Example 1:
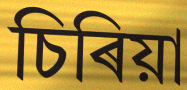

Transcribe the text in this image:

চিৰিয়া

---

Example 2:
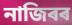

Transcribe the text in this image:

নাজিৰৰ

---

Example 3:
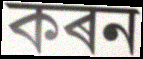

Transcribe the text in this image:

কৰন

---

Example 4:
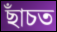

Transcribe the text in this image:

ছাঁচত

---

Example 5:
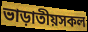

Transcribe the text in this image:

ভাড়াতীয়সকল